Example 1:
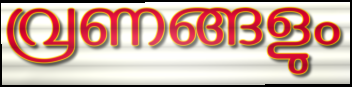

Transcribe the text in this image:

വ്രണങ്ങളും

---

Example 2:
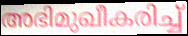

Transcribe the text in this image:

അഭിമുഖീകരിച്ച്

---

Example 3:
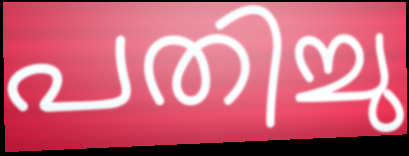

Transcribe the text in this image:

പതിച്ചു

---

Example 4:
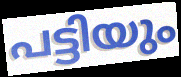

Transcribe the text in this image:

പട്ടിയും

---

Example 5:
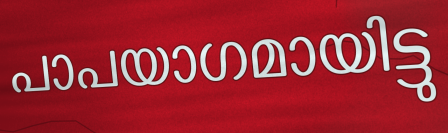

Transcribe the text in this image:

പാപയാഗമായിട്ടു